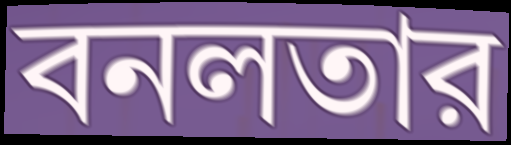
বনলতার